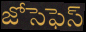
జోసెఫెస్